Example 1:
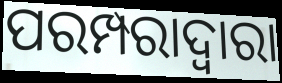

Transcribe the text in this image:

ପରମ୍ପରାଦ୍ବାରା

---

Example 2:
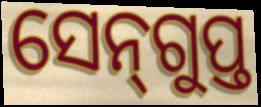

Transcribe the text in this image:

ସେନ୍‌ଗୁପ୍ତ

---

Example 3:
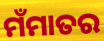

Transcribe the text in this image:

ମଁମାତର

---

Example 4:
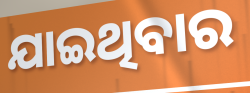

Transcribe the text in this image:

ଯାଇଥିବାର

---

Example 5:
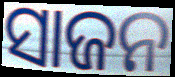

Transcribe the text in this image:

ସାଜନ